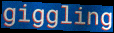
giggling